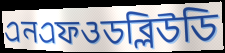
এনএফওডব্লিউডি